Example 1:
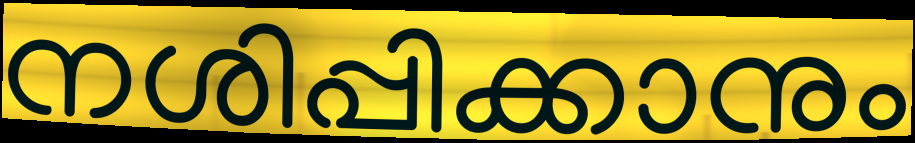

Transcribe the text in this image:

നശിപ്പിക്കാനും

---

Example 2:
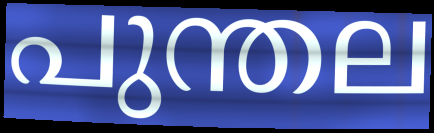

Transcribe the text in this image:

പുന്തല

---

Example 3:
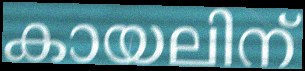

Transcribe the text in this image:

കായലിന്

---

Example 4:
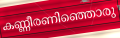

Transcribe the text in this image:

കണ്ണീരണിഞ്ഞൊരു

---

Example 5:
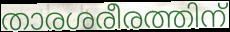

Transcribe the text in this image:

താരശരീരത്തിന്